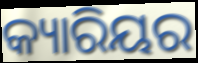
କ୍ୟାରିୟର